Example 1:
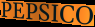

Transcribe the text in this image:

PEPSICO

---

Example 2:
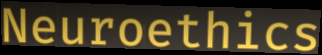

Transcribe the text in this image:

Neuroethics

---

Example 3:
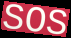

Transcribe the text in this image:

SOS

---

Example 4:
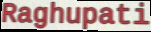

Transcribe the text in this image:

Raghupati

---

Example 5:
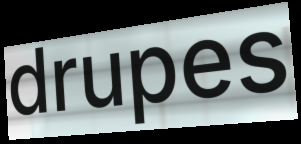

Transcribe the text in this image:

drupes